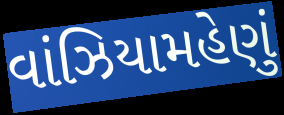
વાંઝિયામહેણું